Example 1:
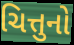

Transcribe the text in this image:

ચિત્તુનો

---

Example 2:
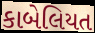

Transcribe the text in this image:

કાબેલિયત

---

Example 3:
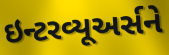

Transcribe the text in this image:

ઇન્ટરવ્યૂઅર્સને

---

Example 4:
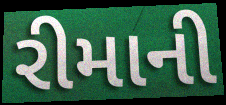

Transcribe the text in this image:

રીમાની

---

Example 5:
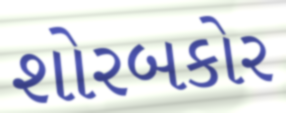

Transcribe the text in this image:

શોરબકોર